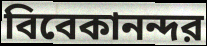
বিবেকানন্দর